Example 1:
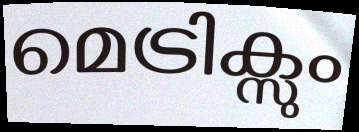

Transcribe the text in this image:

മെട്രിക്സും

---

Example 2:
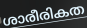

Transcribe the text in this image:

ശാരീരികത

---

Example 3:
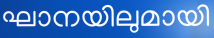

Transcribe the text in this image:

ഘാനയിലുമായി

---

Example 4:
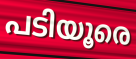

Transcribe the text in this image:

പടിയൂരെ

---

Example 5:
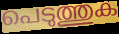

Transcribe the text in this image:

പെടുത്തുക